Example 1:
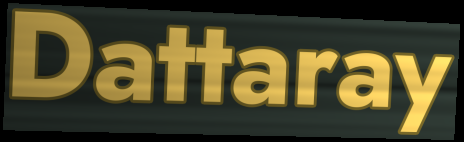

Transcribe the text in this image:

Dattaray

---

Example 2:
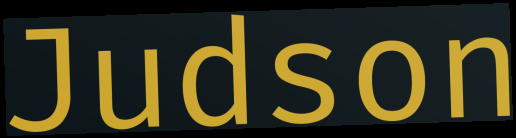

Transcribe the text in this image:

Judson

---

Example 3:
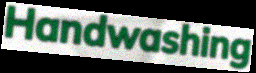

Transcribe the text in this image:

Handwashing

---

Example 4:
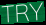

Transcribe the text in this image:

TRY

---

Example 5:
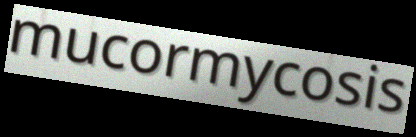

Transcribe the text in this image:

mucormycosis